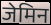
जेमिन